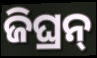
ଜିଘ୍ରନ୍